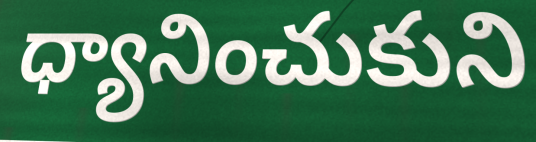
ధ్యానించుకుని